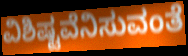
ವಿಶಿಷ್ಟವೆನಿಸುವಂತೆ